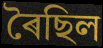
ৰৈছিল